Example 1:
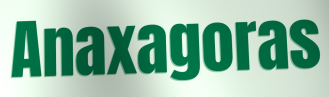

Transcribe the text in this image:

Anaxagoras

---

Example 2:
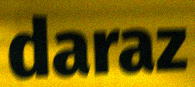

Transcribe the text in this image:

daraz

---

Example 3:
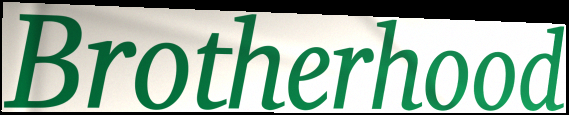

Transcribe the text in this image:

Brotherhood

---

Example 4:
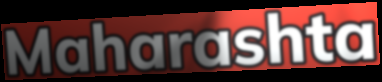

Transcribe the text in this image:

Maharashta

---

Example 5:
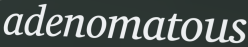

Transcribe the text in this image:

adenomatous